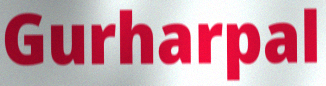
Gurharpal